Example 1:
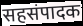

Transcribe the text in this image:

सहसंपादक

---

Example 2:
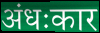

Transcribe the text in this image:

अंधःकार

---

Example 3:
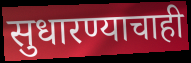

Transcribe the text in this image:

सुधारण्याचाही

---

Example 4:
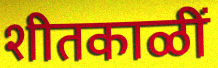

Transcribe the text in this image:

शीतकाळीं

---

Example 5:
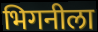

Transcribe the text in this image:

भिगनीला